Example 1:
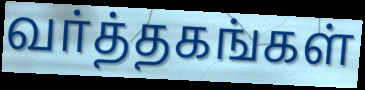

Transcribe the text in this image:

வர்த்தகங்கள்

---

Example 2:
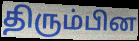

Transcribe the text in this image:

திரும்பின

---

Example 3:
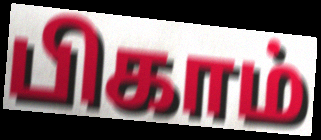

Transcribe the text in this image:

பிகாம்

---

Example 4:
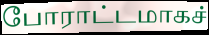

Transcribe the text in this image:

போராட்டமாகச்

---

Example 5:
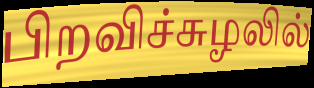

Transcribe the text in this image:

பிறவிச்சுழலில்